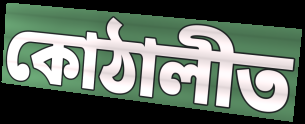
কোঠালীত